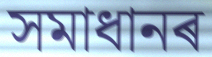
সমাধানৰ